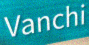
Vanchi